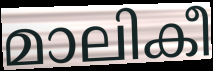
മാലികീ